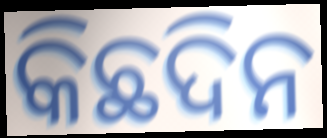
କିଛଦିନ